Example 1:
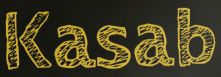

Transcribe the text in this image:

Kasab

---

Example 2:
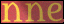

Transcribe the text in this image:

nne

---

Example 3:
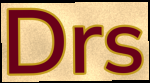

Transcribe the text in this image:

Drs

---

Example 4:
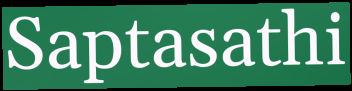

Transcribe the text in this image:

Saptasathi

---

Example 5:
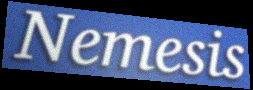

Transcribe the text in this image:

Nemesis